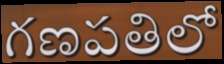
గణపతిలో